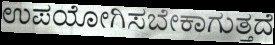
ಉಪಯೋಗಿಸಬೇಕಾಗುತ್ತದೆ